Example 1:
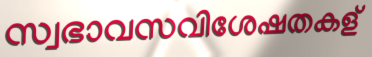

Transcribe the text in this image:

സ്വഭാവസവിശേഷതകള്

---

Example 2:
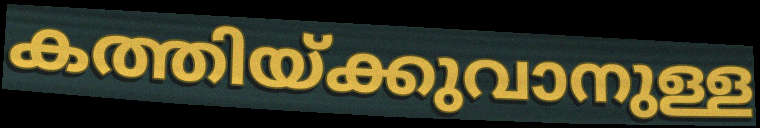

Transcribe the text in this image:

കത്തിയ്ക്കുവാനുള്ള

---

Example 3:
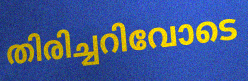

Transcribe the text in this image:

തിരിച്ചറിവോടെ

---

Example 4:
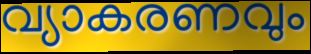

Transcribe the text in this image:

വ്യാകരണവും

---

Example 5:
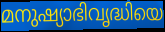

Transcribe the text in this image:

മനുഷ്യാഭിവൃദ്ധിയെ